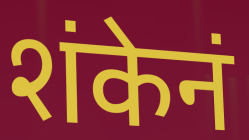
शंकेनं